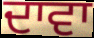
ਦਾਵਾ